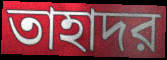
তাহাদর